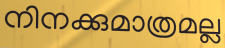
നിനക്കുമാത്രമല്ല